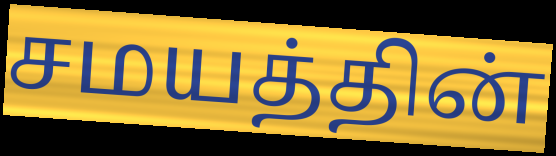
சமயத்தின்